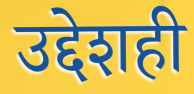
उद्देशही